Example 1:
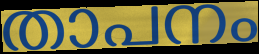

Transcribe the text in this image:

താപനം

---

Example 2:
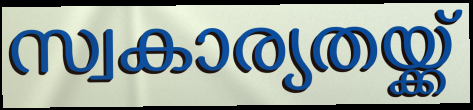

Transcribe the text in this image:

സ്വകാര്യതയ്ക്ക്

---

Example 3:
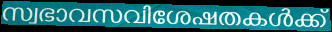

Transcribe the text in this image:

സ്വഭാവസവിശേഷതകൾക്ക്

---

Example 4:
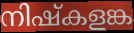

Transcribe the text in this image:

നിഷ്കളങ്ക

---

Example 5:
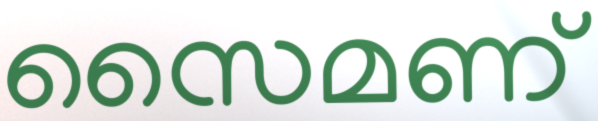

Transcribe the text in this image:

സൈമണ്